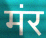
मंर